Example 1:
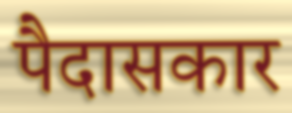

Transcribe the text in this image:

पैदासकार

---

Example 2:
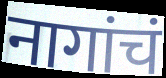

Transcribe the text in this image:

नागांचं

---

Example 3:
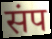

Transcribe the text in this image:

संप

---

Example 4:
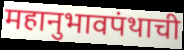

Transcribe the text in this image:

महानुभावपंथाची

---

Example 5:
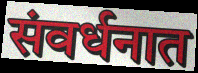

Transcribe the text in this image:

संवर्धनात